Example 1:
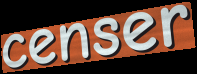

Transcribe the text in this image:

censer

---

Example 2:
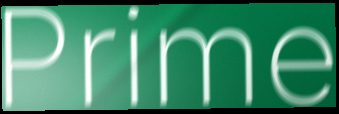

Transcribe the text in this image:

Prime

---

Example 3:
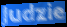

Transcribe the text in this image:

Judzie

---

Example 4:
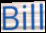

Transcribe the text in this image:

Bill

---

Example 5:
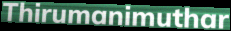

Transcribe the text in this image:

Thirumanimuthar